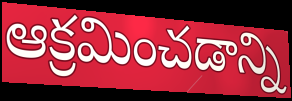
ఆక్రమించడాన్ని